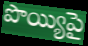
పొయ్యిపై